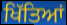
ਖਿੱਤਿਆਂ